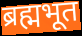
ब्रह्मभूत